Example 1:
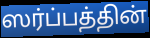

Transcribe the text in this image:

ஸர்ப்பத்தின்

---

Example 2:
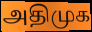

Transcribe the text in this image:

அதிமுக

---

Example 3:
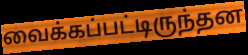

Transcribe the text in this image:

வைக்கப்பட்டிருந்தன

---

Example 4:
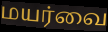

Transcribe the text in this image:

மயர்வை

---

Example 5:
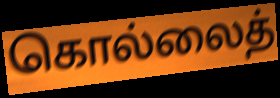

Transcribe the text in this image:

கொல்லைத்